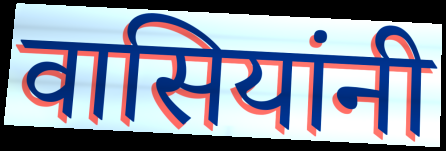
वासियांनी